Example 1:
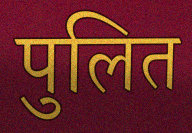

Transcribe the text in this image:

पुलित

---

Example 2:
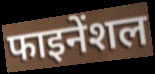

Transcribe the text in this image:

फाइनेंशल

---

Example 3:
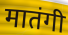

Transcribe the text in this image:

मातंगी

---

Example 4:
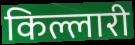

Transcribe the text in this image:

किल्लारी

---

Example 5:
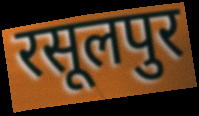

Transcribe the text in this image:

रसूलपुर